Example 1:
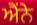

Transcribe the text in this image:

ਐਂਨੇ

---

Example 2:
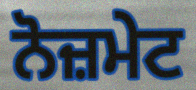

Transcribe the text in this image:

ਨੋਜ਼ਮੇਟ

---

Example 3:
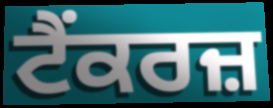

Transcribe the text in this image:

ਟੈਂਕਰਜ਼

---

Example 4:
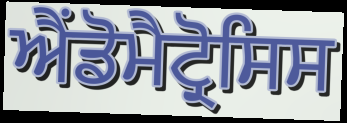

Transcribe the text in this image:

ਐਂਡੋਮੈਟ੍ਰੋਸਿਸ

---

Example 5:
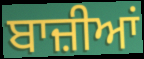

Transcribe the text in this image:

ਬਾਜ਼ੀਆਂ